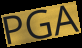
PGA